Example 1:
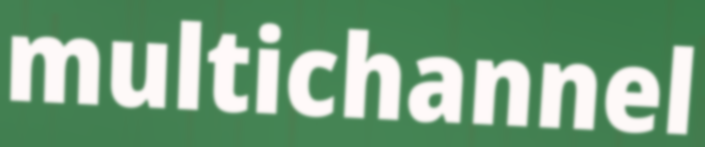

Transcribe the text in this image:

multichannel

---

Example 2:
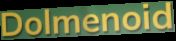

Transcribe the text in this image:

Dolmenoid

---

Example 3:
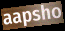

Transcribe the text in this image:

aapsho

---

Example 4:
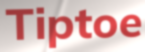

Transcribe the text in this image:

Tiptoe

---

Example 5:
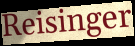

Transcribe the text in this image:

Reisinger